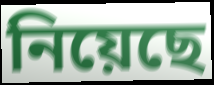
নিয়েছে